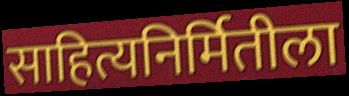
साहित्यनिर्मितीला